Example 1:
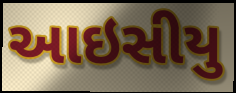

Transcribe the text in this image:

આઇસીયુ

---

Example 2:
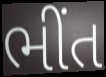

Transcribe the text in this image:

ભીંત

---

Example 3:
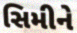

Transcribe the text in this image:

સિમીને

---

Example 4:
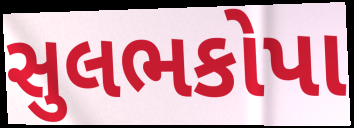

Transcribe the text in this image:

સુલભકોપા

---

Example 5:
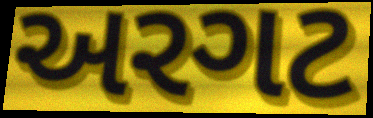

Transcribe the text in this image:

અરગટ